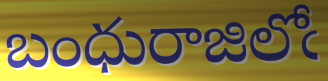
బంధురాజిలోఁ